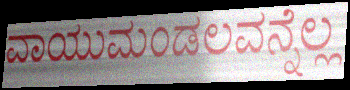
ವಾಯುಮಂಡಲವನ್ನೆಲ್ಲ